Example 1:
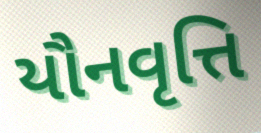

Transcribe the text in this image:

યૌનવૃત્તિ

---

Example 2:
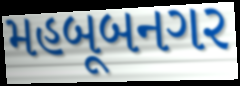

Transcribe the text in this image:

મહબૂબનગર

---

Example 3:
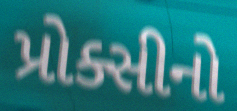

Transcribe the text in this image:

પ્રોક્સીનો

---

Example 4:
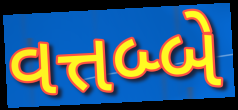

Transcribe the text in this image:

વત્તબ્બે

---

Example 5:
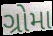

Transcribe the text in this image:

ગ્રોમા